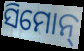
ସିମୋନ୍